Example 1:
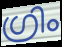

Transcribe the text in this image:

ഗ്രിം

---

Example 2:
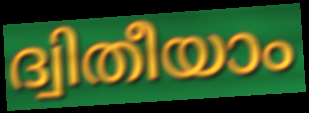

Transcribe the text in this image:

ദ്വിതീയാം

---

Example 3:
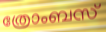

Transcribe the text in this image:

ത്രോംബസ്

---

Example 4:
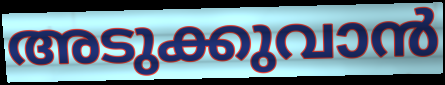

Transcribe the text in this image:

അടുക്കുവാൻ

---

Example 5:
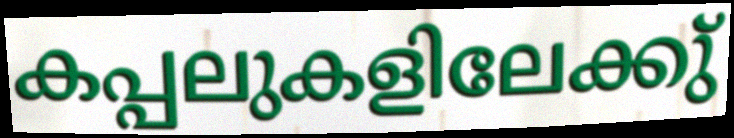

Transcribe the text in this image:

കപ്പലുകളിലേക്കു്